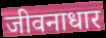
जीवनाधार